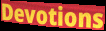
Devotions